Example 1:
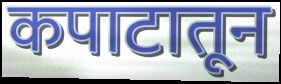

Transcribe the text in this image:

कपाटातून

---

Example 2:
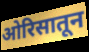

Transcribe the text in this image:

ओरिसातून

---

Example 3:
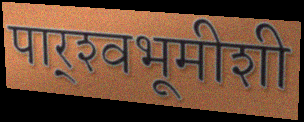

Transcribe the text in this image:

पार्श्वभूमीशी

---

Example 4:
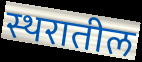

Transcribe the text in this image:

स्थरातील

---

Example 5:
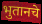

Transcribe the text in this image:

भुतानचे